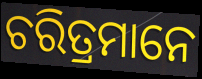
ଚରିତ୍ରମାନେ